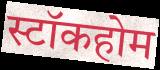
स्टॉकहोम